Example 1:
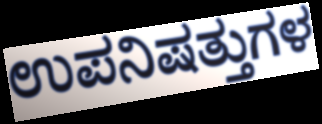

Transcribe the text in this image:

ಉಪನಿಷತ್ತುಗಳ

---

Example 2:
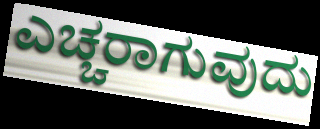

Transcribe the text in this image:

ಎಚ್ಚರಾಗುವುದು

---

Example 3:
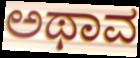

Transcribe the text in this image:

ಅಥಾವ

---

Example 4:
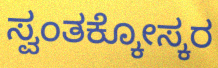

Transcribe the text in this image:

ಸ್ವಂತಕ್ಕೋಸ್ಕರ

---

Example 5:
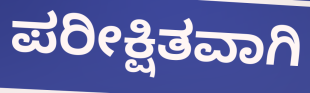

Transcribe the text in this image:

ಪರೀಕ್ಷಿತವಾಗಿ